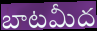
బాటమీద